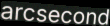
arcsecond